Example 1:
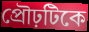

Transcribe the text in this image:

প্রৌঢ়টিকে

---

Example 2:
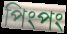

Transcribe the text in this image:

পিংপং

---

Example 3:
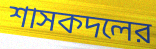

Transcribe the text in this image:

শাসকদলের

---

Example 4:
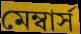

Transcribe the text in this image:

মেম্বার্স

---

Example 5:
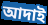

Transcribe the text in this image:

আদাই